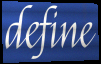
define